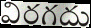
విరగదు